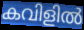
കവിളിൽ